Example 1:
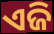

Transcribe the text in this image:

ଏଜି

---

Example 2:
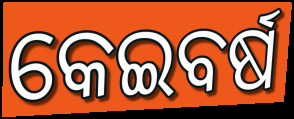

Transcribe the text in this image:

କେଇବର୍ଷ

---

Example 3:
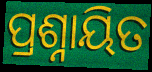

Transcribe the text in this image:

ପ୍ରଶ୍ନାୟିତ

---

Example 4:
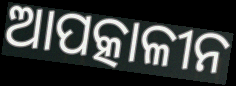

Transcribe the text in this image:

ଆପତ୍କାଳୀନ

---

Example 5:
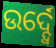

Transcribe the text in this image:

ଉର୍ଦ୍ଦ୍ୱେ